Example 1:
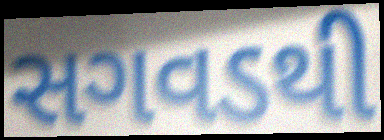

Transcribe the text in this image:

સગવડથી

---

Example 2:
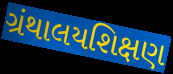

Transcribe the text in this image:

ગ્રંથાલયશિક્ષણ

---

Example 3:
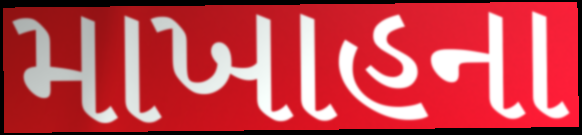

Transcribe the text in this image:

માખાહના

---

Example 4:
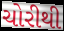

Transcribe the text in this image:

ચોરીથી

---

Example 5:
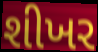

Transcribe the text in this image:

શીખર